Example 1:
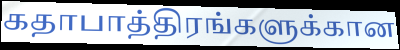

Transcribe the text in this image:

கதாபாத்திரங்களுக்கான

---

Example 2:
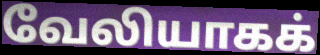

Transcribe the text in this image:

வேலியாகக்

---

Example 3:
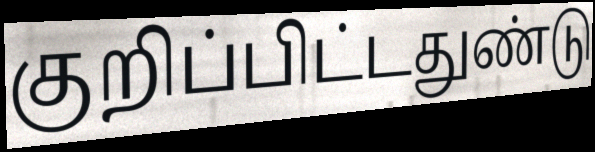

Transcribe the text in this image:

குறிப்பிட்டதுண்டு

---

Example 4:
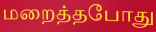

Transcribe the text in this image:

மறைத்தபோது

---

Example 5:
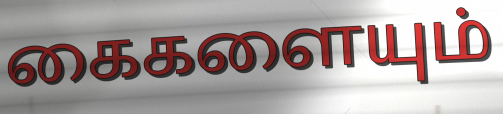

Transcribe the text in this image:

கைகளையும்